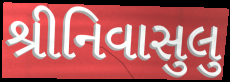
શ્રીનિવાસુલુ